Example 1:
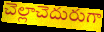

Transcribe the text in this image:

చెల్లాచెదురుగా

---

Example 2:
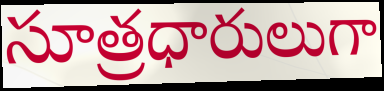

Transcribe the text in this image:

సూత్రధారులుగా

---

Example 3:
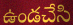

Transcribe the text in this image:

ఉండచేసి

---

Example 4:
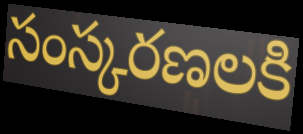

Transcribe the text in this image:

సంస్కరణలకి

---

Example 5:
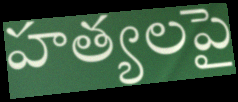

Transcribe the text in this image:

హత్యలపై